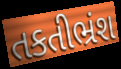
તકતીભ્રંશ